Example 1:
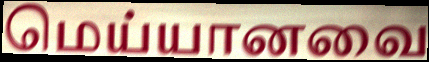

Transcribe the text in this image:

மெய்யானவை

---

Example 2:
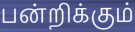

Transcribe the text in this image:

பன்றிக்கும்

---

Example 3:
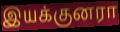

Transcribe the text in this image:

இயக்குனரா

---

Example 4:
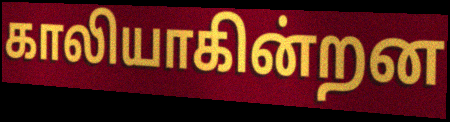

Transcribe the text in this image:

காலியாகின்றன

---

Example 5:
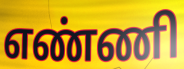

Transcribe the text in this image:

எண்ணி